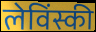
लेविंस्की